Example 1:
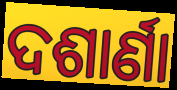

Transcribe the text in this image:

ଦଶାର୍ଣା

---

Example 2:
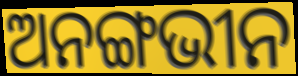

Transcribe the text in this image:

ଅନଙ୍ଗଭୀନ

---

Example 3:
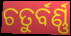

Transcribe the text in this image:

ଚତୁର୍ବର୍ଣ୍ଣ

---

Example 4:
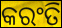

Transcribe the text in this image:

କରଂତି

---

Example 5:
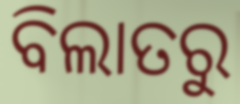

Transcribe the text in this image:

ବିଲାତରୁ